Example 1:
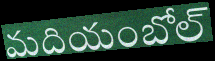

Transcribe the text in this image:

మదియంబోల్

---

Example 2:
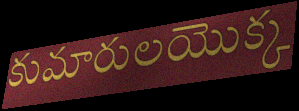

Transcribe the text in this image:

కుమారులయొక్క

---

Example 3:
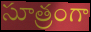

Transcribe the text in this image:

సూత్రంగా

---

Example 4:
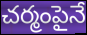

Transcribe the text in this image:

చర్మంపైనే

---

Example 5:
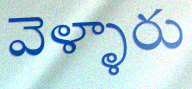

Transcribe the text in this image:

వెళ్ళారు